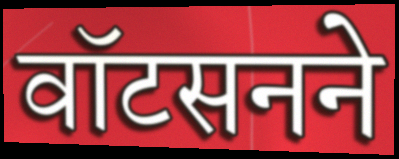
वॉटसनने